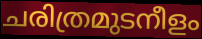
ചരിത്രമുടനീളം